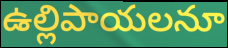
ఉల్లిపాయలనూ